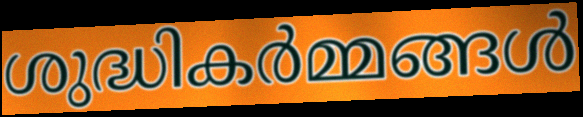
ശുദ്ധികർമ്മങ്ങൾ